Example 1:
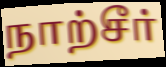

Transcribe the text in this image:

நாற்சீர்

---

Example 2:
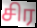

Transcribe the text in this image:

சிர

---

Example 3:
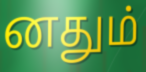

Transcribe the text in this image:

னதும்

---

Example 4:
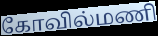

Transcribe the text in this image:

கோவில்மணி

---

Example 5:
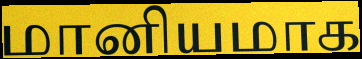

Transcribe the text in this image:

மானியமாக